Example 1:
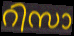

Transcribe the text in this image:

റിസാ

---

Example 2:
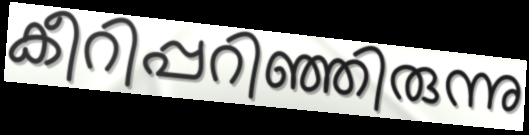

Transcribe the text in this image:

കീറിപ്പറിഞ്ഞിരുന്നു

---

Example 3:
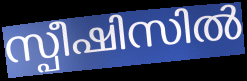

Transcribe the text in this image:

സ്പീഷിസിൽ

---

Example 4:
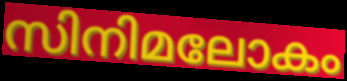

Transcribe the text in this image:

സിനിമലോകം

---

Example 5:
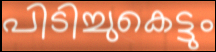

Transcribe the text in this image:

പിടിച്ചുകെട്ടും